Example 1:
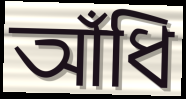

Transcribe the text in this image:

আঁধি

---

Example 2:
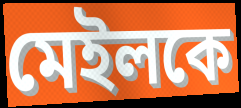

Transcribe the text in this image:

মেইলকে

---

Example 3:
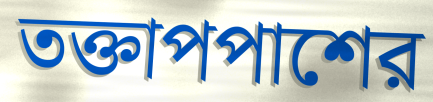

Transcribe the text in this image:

তক্তাপপাশের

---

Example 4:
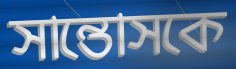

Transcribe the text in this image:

সান্তোসকে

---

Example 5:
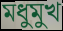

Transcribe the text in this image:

মধুমুখ